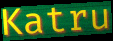
Katru